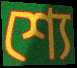
শ্যে